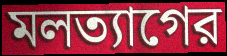
মলত্যাগের